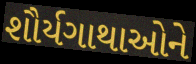
શૌર્યગાથાઓને